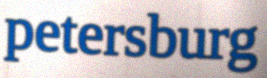
petersburg